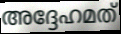
അദ്ദേഹമത്